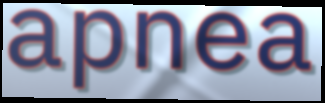
apnea